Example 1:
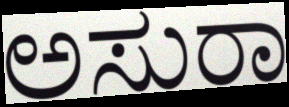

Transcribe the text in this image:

ಅಸುರಾ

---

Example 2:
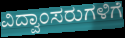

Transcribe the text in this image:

ವಿದ್ವಾಂಸರುಗಳಿಗೆ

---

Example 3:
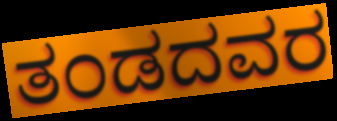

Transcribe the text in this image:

ತಂಡದವರ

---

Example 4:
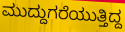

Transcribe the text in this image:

ಮುದ್ದುಗರೆಯುತ್ತಿದ್ದ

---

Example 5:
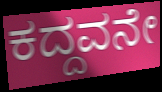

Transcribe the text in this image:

ಕದ್ದವನೇ